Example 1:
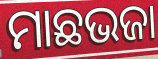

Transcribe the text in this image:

ମାଛଭଜା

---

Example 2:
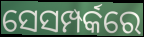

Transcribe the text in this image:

ସେସମ୍ପର୍କରେ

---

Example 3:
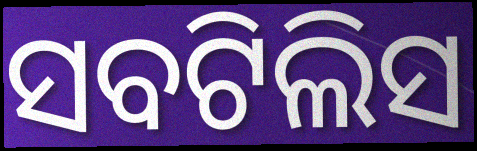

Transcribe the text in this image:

ସବଟିଲିସ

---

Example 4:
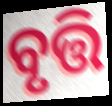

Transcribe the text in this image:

ବୃତ୍ତି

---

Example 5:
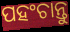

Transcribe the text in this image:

ପହଂଚାନ୍ତୁ